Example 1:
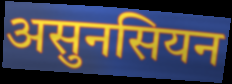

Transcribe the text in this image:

असुनसियन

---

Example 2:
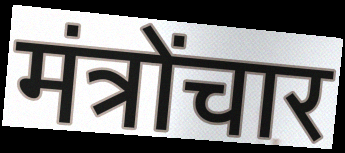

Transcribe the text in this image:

मंत्रोंचार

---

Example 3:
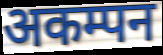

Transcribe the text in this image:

अकम्पन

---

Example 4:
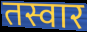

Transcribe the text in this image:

तस्वार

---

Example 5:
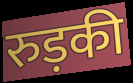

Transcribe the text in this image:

रुड़की